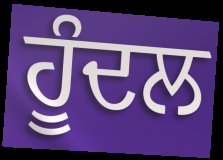
ਹੂੰਦਲ